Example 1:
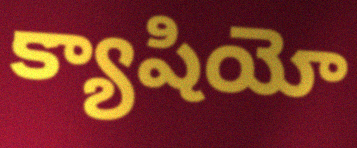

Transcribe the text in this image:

క్యాషియో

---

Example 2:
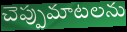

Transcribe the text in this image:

చెప్పుమాటలను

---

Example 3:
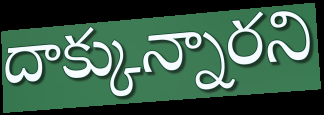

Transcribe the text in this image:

దాక్కున్నారని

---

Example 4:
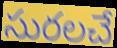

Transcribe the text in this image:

సురలచే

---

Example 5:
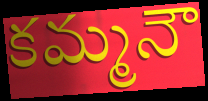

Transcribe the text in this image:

కమ్మనౌ